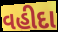
વહીદા